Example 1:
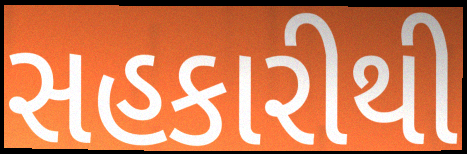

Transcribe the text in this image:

સહકારીથી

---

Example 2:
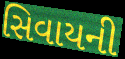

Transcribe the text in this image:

સિવાયની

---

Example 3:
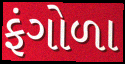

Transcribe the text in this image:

ફંગોળા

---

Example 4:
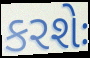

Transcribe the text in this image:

કરશેઃ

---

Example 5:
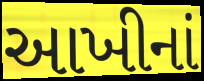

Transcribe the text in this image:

આખીનાં